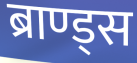
ब्राण्‍ड्स